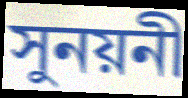
সুনয়নী